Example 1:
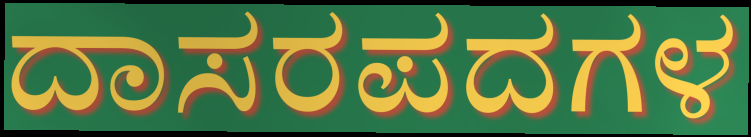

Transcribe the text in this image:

ದಾಸರಪದಗಳ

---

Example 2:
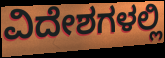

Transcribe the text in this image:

ವಿದೇಶಗಳಲ್ಲಿ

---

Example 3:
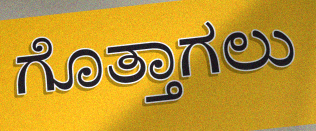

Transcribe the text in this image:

ಗೊತ್ತಾಗಲು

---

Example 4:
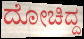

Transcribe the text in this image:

ದೋಚಿದ್ದ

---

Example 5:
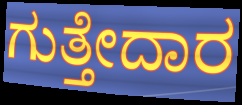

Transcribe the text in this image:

ಗುತ್ತೇದಾರ